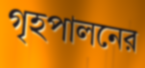
গৃহপালনের